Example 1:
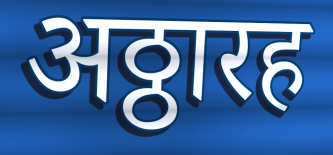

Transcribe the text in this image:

अठ्ठारह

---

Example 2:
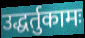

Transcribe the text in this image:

उद्धर्तुकामः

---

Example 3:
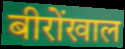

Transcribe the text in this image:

बीरोंखाल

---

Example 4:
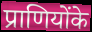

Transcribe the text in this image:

प्राणियोंके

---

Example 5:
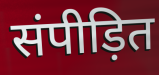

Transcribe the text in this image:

संपीड़ित